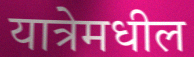
यात्रेमधील